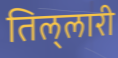
तिल्लारी